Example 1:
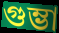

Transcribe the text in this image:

গুম্ভা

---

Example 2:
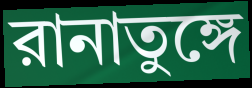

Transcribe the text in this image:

রানাতুঙ্গে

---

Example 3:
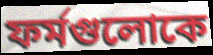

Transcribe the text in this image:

ফর্মগুলোকে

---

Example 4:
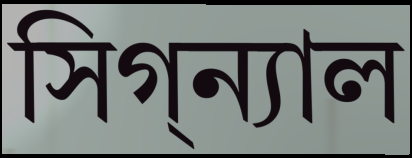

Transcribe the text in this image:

সিগ্‌ন্যাল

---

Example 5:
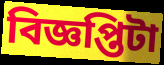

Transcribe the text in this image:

বিজ্ঞপ্তিটা